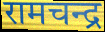
रामचन्‍द्र